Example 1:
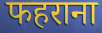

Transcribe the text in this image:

फहराना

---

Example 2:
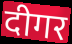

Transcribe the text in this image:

दीगर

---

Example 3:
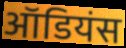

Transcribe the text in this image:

ऑडियंस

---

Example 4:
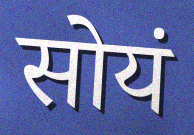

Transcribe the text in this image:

सोयं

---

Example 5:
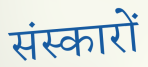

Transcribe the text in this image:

संस्कारों